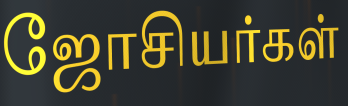
ஜோசியர்கள்